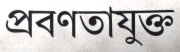
প্রবণতাযুক্ত